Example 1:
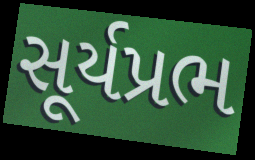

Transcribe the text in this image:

સૂર્યપ્રભ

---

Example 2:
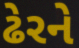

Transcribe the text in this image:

ઢેરને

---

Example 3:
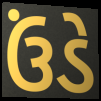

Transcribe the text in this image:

ઉંડે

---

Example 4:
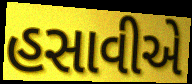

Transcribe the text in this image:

હસાવીએ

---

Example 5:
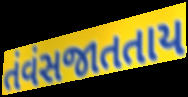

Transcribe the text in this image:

તંવંસજાતતાય